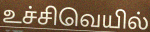
உச்சிவெயில்